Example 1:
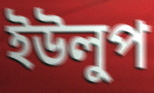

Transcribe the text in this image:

ইউলুপ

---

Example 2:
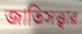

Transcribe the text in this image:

জাতিসত্ত্বার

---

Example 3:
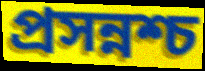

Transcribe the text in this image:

প্রসন্নশ্চ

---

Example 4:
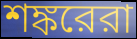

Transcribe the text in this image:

শঙ্করেরা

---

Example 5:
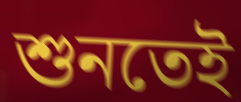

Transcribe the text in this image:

শুনতেই